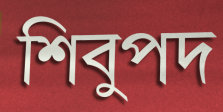
শিবুপদ